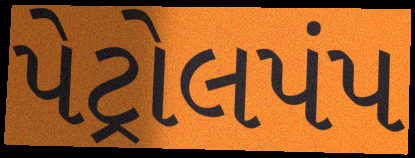
પેટ્રોલપંપ